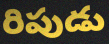
రిపుడు